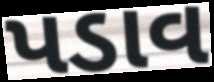
પડાવ